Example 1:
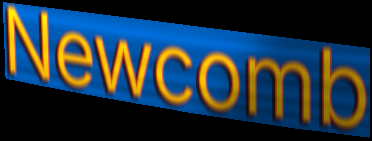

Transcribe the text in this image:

Newcomb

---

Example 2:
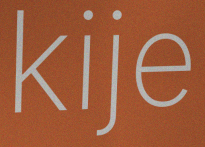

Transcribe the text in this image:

kije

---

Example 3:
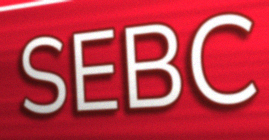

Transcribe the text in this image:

SEBC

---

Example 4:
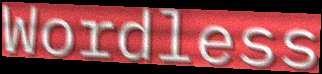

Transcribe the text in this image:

Wordless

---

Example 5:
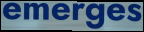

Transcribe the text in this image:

emerges